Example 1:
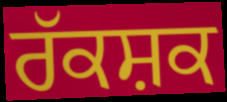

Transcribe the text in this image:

ਰੱਕਸ਼ਕ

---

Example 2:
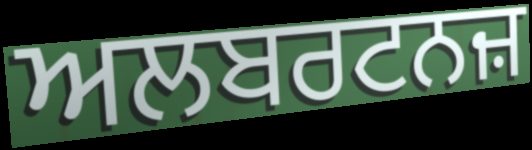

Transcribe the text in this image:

ਅਲਬਰਟਨਜ਼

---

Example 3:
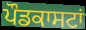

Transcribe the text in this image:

ਪੌਡਕਾਸਟਾਂ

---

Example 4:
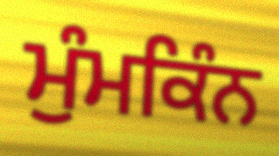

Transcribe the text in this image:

ਮੁੰਮਕਿੰਨ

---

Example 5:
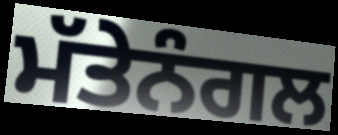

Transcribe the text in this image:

ਮੱਤੇਨੰਗਲ